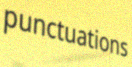
punctuations